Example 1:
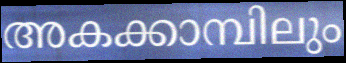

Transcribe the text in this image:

അകക്കാമ്പിലും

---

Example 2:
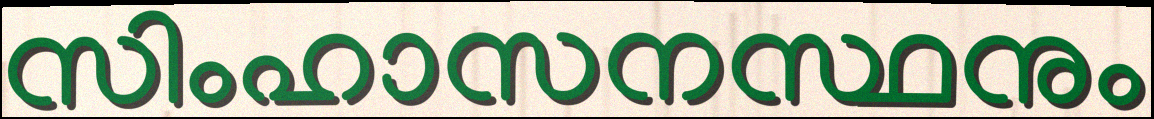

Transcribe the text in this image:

സിംഹാസനസ്ഥനും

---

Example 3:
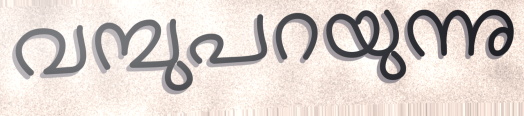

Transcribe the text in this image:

വമ്പുപറയുന്നു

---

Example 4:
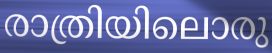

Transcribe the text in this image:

രാത്രിയിലൊരു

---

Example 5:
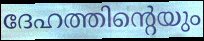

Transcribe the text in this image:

ദേഹത്തിന്റെയും